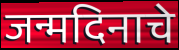
जन्मदिनाचे